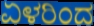
ಏಳರಿಂದ